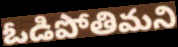
ఓడిపోతిమని